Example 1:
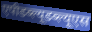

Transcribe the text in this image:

एपीडब्ल्यूडब्ल्यूएस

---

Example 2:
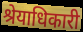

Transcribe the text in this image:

श्रेयाधिकारी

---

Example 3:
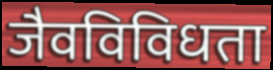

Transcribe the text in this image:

जैवविविधता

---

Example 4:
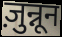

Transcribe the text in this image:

ज़ुन्नून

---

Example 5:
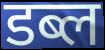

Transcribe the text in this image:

डब्ल